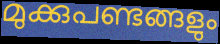
മുക്കുപണ്ടങ്ങളും